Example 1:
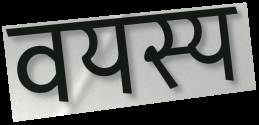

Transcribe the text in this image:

वयस्य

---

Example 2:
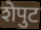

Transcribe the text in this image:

शेपुट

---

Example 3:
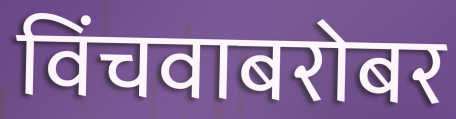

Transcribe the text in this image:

विंचवाबरोबर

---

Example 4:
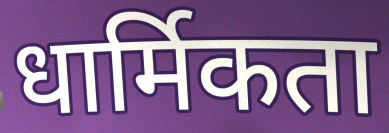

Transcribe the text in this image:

धार्मिकता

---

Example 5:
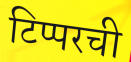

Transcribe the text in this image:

टिप्परची